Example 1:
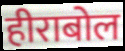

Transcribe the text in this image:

हीराबोल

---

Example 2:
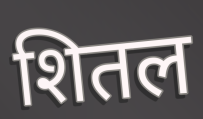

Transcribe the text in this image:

शितल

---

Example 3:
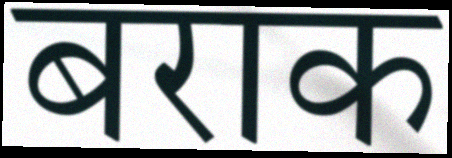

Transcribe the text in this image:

बराक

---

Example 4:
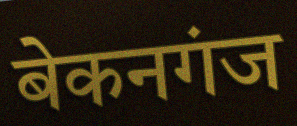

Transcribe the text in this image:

बेकनगंज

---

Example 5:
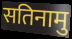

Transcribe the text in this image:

सतिनामु